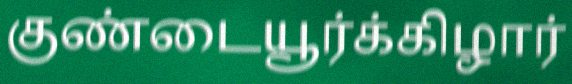
குண்டையூர்க்கிழார்